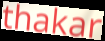
thakar